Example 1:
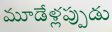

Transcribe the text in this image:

మూడేళ్లప్పుడు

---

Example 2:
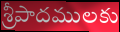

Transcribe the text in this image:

శ్రీపాదములకు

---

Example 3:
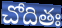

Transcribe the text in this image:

చోదితః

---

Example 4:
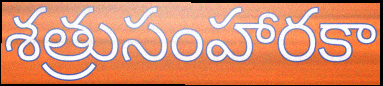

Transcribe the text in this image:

శత్రుసంహారకా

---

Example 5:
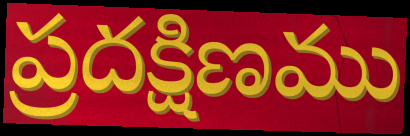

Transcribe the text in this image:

ప్రదక్షిణము